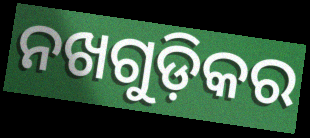
ନଖଗୁଡ଼ିକର